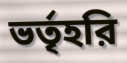
ভর্তৃহরি